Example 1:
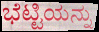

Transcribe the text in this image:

ಭೆಟ್ಟಿಯನ್ನು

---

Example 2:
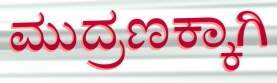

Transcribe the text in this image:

ಮುದ್ರಣಕ್ಕಾಗಿ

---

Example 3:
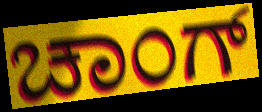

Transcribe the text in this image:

ಚಾಂಗ್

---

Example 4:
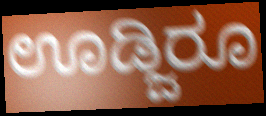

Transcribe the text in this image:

ಊಡ್ಜಿರೂ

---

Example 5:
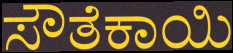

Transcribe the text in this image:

ಸೌತೆಕಾಯಿ